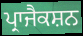
ਪ੍ਰਾਜੈਕਸ਼ਨ